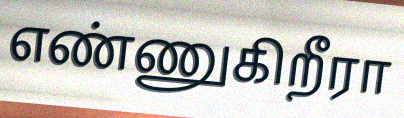
எண்ணுகிறீரா